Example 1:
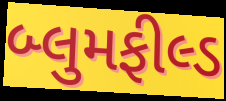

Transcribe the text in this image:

બ્લુમફીલ્ડ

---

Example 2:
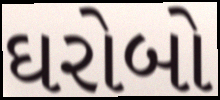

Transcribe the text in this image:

ઘરોબો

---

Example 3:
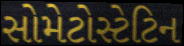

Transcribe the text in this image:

સોમેટોસ્ટેટિન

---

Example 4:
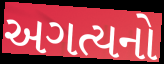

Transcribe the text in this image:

અગત્યનો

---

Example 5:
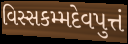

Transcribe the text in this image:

વિસ્સકમ્મદેવપુત્તં